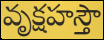
వృక్షహస్తౌ